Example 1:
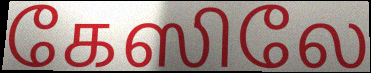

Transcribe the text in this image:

கேஸிலே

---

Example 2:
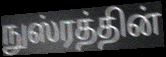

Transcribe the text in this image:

நுஸ்ரத்தின்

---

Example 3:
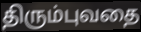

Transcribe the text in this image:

திரும்புவதை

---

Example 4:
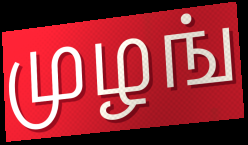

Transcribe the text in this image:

முழங்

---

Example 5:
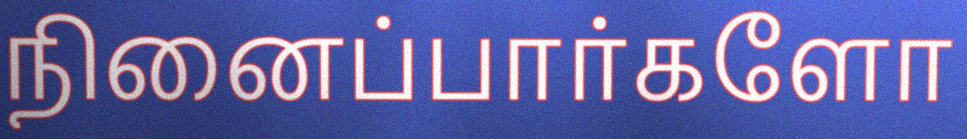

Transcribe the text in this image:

நினைப்பார்களோ